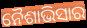
ନୈଶାଭିସାର